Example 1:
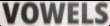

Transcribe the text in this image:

VOWELS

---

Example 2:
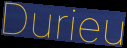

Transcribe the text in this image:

Durieu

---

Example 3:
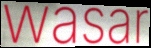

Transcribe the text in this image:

wasar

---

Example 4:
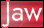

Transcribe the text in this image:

Jaw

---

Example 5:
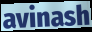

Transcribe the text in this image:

avinash